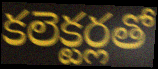
కలెక్టర్లతో